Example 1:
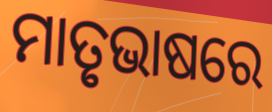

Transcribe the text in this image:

ମାତୃଭାଷରେ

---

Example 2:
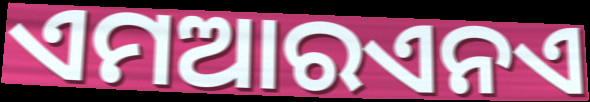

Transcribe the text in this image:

ଏମଆରଏନଏ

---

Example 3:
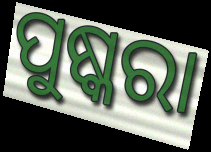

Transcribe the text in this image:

ପୁଷ୍କରା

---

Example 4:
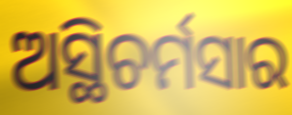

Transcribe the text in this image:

ଅସ୍ଥିଚର୍ମସାର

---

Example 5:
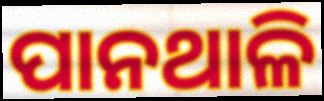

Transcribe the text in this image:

ପାନଥାଳି